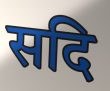
सदि